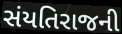
સંયતિરાજની